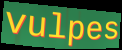
vulpes